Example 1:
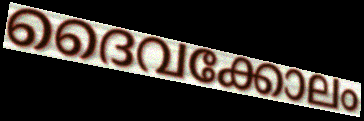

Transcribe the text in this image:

ദൈവക്കോലം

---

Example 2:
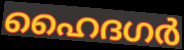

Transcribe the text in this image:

ഹൈദഗർ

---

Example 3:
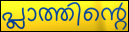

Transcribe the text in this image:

പ്ലാത്തിന്റെ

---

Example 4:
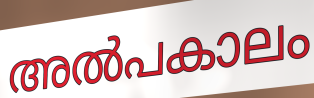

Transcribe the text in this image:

അൽപകാലം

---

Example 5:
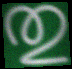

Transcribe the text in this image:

തു